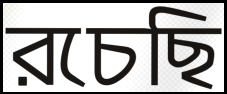
রচেছি